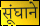
सूंघाने